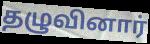
தழுவினார்